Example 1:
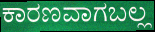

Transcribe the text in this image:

ಕಾರಣವಾಗಬಲ್ಲ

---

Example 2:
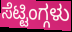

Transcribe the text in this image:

ಸೆಟ್ಟಿಂಗ್ಗಳು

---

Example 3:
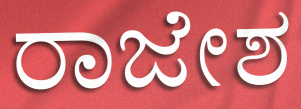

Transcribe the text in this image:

ರಾಜೇಶ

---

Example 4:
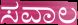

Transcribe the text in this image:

ಸವಾಲ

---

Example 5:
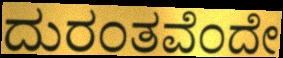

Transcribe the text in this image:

ದುರಂತವೆಂದೇ